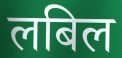
लबिल